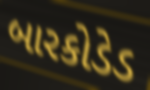
બારકોડેડ